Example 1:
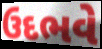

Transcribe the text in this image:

ઉદભવે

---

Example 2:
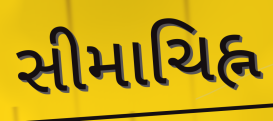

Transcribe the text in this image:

સીમાચિહ્ન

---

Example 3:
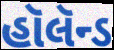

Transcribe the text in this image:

હૉલૅન્ડ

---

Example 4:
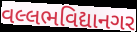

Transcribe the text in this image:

વલ્લભવિદ્યાનગર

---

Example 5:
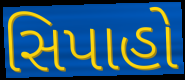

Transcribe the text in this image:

સિપાહો